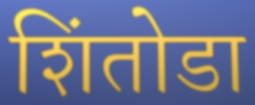
शिंतोडा